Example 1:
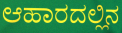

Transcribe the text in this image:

ಆಹಾರದಲ್ಲಿನ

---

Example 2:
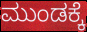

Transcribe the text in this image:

ಮುಂಡಕ್ಕೆ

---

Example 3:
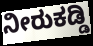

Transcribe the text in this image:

ನೀರುಕಡ್ಡಿ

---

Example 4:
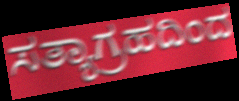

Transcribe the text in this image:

ಸತ್ಯಾಗ್ರಹದಿಂದ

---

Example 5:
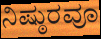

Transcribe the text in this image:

ನಿಷ್ಠುರವೂ